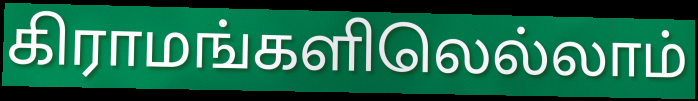
கிராமங்களிலெல்லாம்